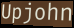
Upjohn